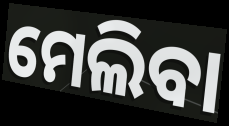
ମେଲିବା